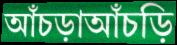
আঁচড়াআঁচড়ি